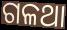
ଗଳଥା